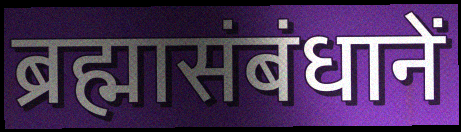
ब्रह्मासंबंधानें